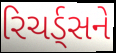
રિચર્ડ્સને